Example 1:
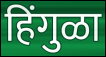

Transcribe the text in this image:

हिंगुळा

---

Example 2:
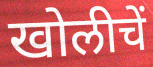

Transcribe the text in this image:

खोलीचें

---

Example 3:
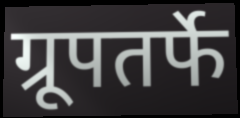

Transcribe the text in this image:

ग्रूपतर्फे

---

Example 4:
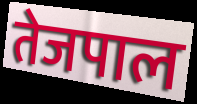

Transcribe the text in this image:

तेजपाल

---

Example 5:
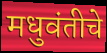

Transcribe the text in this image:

मधुवंतीचे